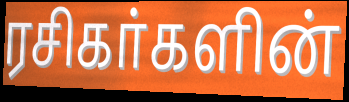
ரசிகர்களின்